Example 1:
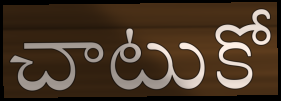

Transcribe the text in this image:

చాటుకో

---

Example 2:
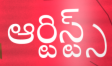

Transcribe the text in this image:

ఆర్టిస్ట్స్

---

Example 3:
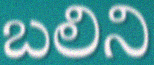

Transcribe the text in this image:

బలిని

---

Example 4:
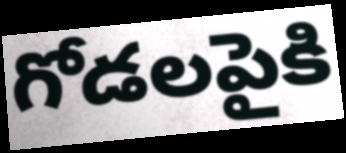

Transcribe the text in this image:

గోడలపైకి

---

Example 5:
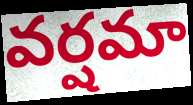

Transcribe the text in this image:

వర్షమా